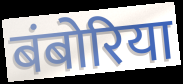
बंबोरिया